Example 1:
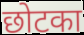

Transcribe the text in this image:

छोटका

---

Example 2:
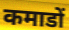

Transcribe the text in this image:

कमाडों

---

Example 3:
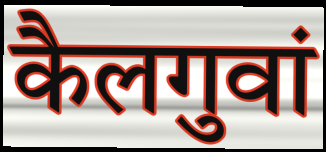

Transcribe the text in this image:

कैलगुवां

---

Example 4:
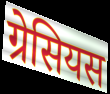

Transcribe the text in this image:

ग्रेसियस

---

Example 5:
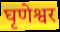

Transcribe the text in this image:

घृणेश्वर